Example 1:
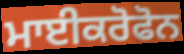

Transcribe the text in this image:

ਮਾਈਕਰੋਫੋਨ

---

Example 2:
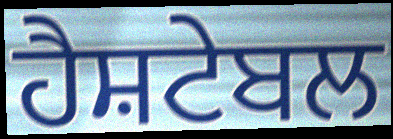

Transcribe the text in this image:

ਹੈਸ਼ਟੇਬਲ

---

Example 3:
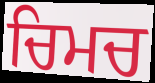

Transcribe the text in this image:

ਚਿਮਚ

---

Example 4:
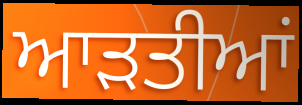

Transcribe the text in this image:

ਆੜਤੀਆਂ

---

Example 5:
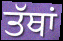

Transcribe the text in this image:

ਤੱਥਾਂ